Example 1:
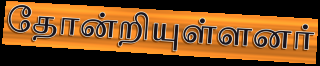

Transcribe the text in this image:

தோன்றியுள்ளனர்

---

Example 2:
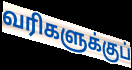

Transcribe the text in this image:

வரிகளுக்குப்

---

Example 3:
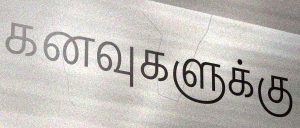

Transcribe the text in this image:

கனவுகளுக்கு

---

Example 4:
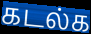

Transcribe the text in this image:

கடல்க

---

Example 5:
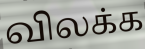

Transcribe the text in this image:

விலக்க